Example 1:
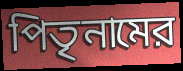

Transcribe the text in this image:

পিতৃনামের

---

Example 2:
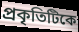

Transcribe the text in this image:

প্রকৃতিটিকে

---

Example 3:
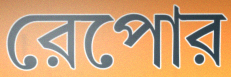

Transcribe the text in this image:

রেপোর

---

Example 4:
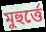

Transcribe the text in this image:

মুহুর্ত্তে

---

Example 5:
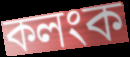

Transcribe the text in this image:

কলংক